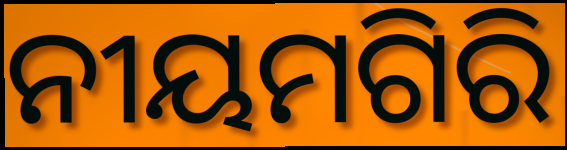
ନୀୟମଗିରି